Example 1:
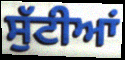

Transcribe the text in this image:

ਸੁੱਟੀਆਂ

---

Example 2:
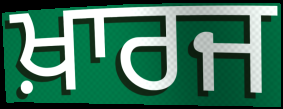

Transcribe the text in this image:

ਖ਼ਾਰਜ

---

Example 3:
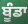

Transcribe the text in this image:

ਬੂੰਡਾ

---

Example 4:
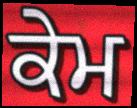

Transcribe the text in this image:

ਕੇਮ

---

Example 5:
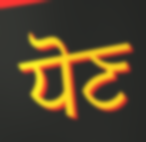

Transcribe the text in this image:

ਧੋਣ